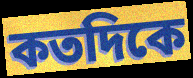
কতদিকে